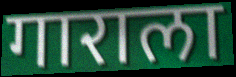
गाराला